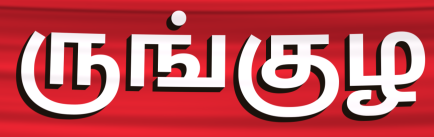
ருங்குழ